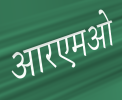
आरएमओ